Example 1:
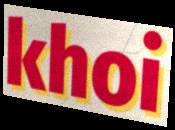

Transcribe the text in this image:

khoi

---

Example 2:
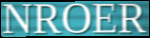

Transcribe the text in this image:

NROER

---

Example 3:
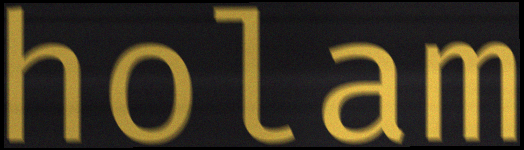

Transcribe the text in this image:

holam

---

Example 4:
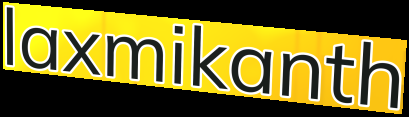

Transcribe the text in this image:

laxmikanth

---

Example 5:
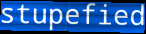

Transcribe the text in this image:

stupefied